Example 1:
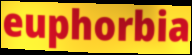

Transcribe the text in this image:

euphorbia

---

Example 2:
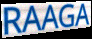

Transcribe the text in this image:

RAAGA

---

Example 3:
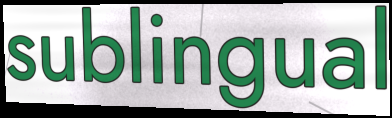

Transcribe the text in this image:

sublingual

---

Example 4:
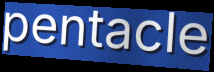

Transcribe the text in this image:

pentacle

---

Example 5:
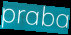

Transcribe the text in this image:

praba